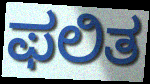
ಫಲಿತ